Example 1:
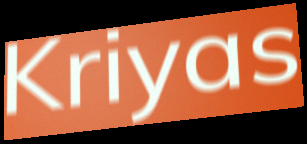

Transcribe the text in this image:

Kriyas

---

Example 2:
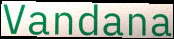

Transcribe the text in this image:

Vandana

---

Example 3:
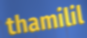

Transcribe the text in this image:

thamilil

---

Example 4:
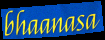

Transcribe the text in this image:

bhaanasa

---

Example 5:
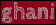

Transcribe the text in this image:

ghani